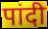
पांदी